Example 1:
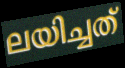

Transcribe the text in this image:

ലയിച്ചത്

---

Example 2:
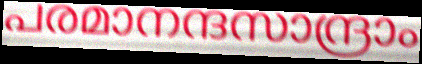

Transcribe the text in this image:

പരമാനന്ദസാന്ദ്രാം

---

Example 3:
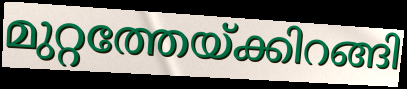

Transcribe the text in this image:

മുറ്റത്തേയ്ക്കിറങ്ങി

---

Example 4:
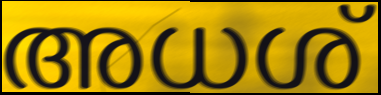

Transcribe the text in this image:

അധശ്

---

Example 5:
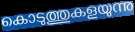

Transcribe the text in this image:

കൊടുത്തുകളയുന്നു